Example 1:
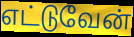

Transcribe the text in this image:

எட்டுவேன்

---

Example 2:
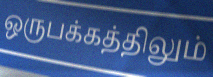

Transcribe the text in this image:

ஒருபக்கத்திலும்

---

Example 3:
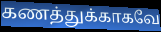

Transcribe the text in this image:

கணத்துக்காகவே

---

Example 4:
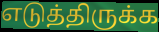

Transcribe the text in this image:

எடுத்திருக்க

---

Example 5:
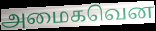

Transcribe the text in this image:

அமைகவென